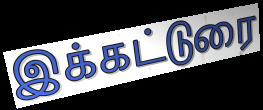
இக்கட்டுரை